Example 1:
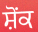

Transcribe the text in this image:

ਸ਼ੋਂਕ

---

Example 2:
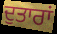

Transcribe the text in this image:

ਦੁਤਾਰਾਂ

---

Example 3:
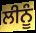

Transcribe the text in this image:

ਲੀਨੂੰ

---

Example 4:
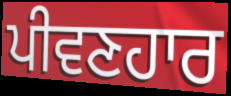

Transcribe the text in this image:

ਪੀਵਣਹਾਰ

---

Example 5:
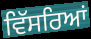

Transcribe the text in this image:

ਵਿੱਸਰਿਆਂ